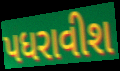
પધરાવીશ